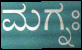
ಮಗ್ನಃ